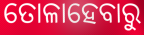
ତୋଳାହେବାରୁ